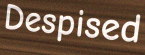
Despised